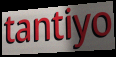
tantiyo